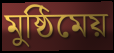
মুষ্ঠিমেয়